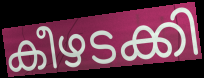
കീഴടക്കി